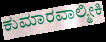
ಕುಮಾರವಾಲ್ಮೀಕಿ